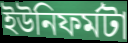
ইউনিফর্মটা